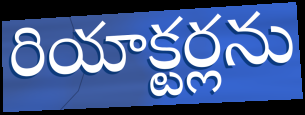
రియాక్టర్లను